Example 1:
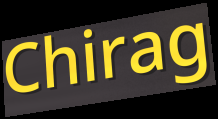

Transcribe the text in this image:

Chirag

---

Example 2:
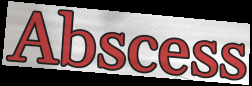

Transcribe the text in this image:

Abscess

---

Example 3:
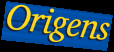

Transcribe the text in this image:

Origens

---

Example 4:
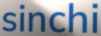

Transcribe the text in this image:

sinchi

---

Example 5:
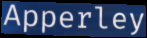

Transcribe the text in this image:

Apperley